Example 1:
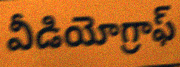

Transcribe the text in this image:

వీడియోగ్రాఫ్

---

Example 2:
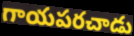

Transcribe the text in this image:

గాయపరచాడు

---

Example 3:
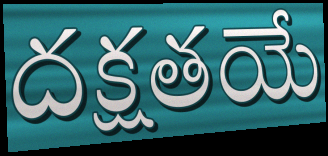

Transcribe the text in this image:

దక్షతయే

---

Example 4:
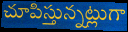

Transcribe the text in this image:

చూపిస్తున్నట్లుగా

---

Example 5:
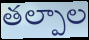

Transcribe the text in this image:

తల్పాల